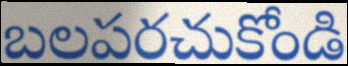
బలపరచుకోండి